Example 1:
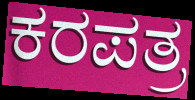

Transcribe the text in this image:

ಕರಪತ್ರ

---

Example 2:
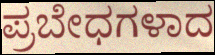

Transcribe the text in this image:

ಪ್ರಬೇಧಗಳಾದ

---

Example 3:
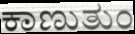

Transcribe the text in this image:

ಕಾಣುತುಂ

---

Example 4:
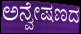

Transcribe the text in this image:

ಅನ್ವೇಷಣದ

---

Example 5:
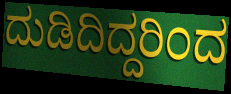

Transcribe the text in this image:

ದುಡಿದಿದ್ದರಿಂದ